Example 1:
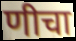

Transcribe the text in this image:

णीचा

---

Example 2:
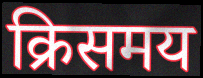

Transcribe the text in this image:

क्रिसमय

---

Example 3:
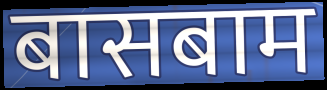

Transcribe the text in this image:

बासबाम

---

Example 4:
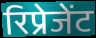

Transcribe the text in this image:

रिप्रेजेंट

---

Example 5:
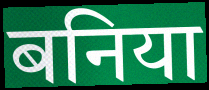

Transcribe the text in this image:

बनिया